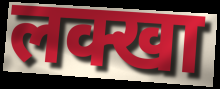
लक्खा